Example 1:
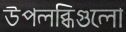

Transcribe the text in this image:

উপলব্ধিগুলো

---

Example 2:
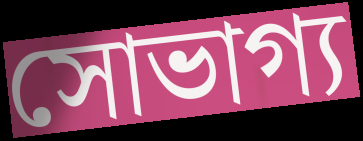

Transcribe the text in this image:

সোভাগ্য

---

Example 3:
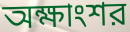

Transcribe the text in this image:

অক্ষাংশর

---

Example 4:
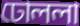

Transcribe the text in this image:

ঢোললা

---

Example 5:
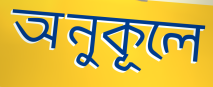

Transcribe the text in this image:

অনুকূলে